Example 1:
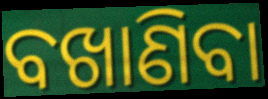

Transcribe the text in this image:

ବଖାଣିବା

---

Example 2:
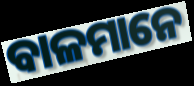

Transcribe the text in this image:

ବାଳମାନେ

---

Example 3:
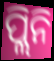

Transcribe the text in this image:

ପ୍ଲିନି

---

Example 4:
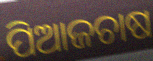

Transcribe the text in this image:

ପିଆଜଚାଷ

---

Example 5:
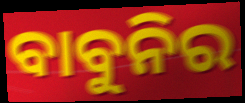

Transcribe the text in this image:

ବାବୁନିର